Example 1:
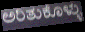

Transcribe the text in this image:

ಅರಿತುಕೊಳ್ಳು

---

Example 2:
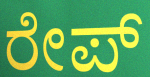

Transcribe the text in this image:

ರೇಪ್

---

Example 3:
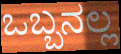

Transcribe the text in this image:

ಒಬ್ಬನಲ್ಲ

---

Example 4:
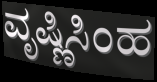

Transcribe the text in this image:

ವೃಷ್ಣಿಸಿಂಹ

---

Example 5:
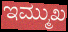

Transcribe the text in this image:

ಇಮ್ಮುಖ